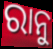
ରାନୁ